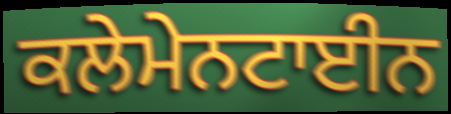
ਕਲੇਮੇਨਟਾਈਨ